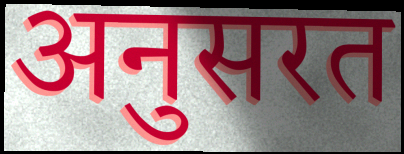
अनुसरत